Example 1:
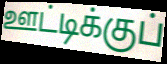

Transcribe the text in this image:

ஊட்டிக்குப்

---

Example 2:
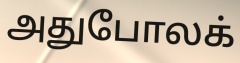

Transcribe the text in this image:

அதுபோலக்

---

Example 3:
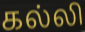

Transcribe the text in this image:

கல்லி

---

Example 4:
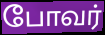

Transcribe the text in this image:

போவர்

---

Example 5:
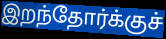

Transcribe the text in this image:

இறந்தோர்க்குச்